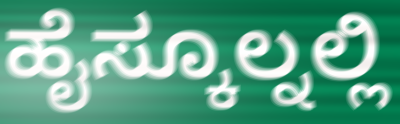
ಹೈಸ್ಕೂಲ್ನಲ್ಲಿ